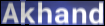
Akhand